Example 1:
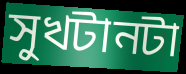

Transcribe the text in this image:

সুখটানটা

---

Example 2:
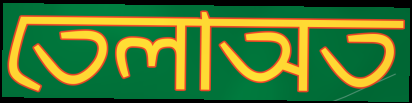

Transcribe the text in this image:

তেলাঅত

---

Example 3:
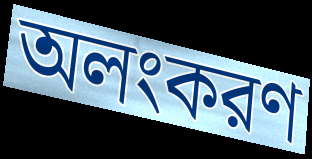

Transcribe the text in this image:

অলংকরণ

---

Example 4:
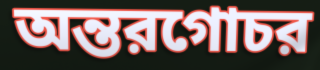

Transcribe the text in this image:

অন্তরগোচর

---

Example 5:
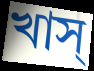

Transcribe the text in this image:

খাস্